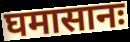
घमासानः